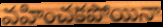
వహించకపోయినా